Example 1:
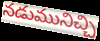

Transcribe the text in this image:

నడుమునిచ్చి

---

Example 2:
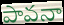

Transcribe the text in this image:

పావనా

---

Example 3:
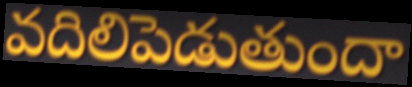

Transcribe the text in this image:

వదిలిపెడుతుందా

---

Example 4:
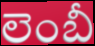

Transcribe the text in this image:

లెంబీ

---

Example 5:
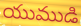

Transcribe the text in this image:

యుముడి